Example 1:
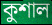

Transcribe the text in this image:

কুশাল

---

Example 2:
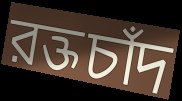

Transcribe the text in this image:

রক্তচাঁদ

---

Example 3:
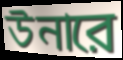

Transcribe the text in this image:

উনারে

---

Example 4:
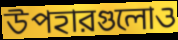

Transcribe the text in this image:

উপহারগুলোও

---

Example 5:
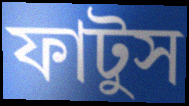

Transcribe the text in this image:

ফাটুস